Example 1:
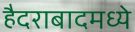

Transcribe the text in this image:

हैदराबादमध्ये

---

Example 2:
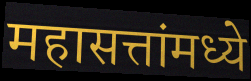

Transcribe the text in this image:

महासत्तांमध्ये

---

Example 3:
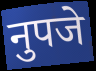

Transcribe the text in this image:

नुपजे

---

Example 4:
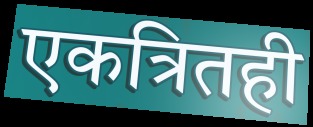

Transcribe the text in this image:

एकत्रितही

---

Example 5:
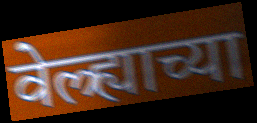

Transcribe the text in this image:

वेल्ह्याच्या